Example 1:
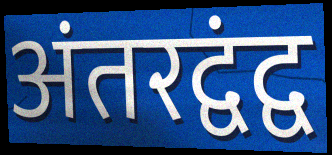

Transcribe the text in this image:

अंतरद्वंद्व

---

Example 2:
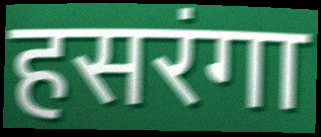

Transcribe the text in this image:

हसरंगा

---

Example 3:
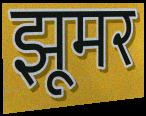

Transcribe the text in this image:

झूमर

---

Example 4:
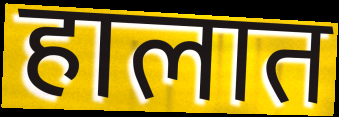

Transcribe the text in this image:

हालात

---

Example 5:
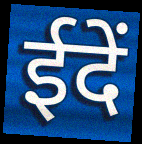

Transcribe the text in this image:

ईदें